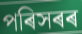
পৰিসৰৰ